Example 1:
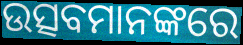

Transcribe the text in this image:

ଉତ୍ସବମାନଙ୍କରେ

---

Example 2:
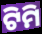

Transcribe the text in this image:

ଟିମି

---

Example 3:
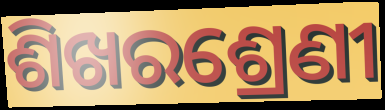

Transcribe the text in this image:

ଶିଖରଶ୍ରେଣୀ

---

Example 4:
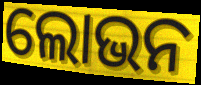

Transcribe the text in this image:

ଲୋଭନ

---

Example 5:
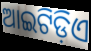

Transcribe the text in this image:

ଆଇଟିଡ଼ିଏ